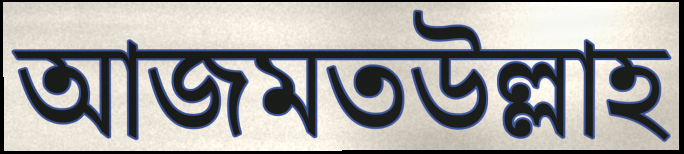
আজমতউল্লাহ